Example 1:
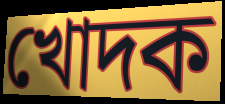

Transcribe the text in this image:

খোদক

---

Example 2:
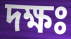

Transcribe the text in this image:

দক্ষঃ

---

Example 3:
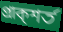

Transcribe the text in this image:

প্রাক্‌শর্ত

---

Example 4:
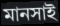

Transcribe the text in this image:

মানসাই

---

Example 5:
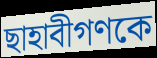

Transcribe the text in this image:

ছাহাবীগণকে